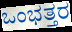
ಒಂಭತ್ತರ